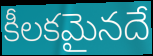
కీలకమైనదే